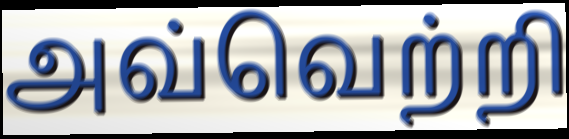
அவ்வெற்றி